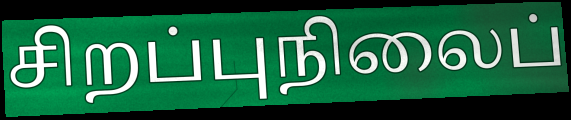
சிறப்புநிலைப்